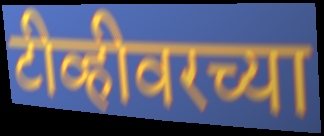
टीव्हीवरच्या